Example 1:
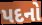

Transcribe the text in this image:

પદનો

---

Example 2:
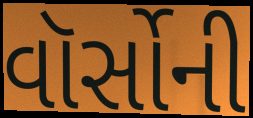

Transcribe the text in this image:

વૉર્સોની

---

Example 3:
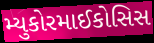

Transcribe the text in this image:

મ્યુકોરમાઈકોસિસ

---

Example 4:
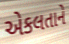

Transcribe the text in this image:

એકલતાને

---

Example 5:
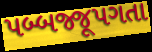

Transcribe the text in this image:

પબ્બજ્જૂપગતા